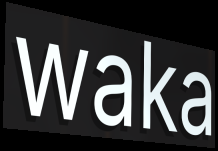
waka